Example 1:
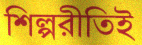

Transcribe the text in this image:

শিল্পরীতিই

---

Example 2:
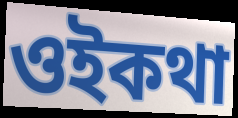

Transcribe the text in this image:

ওইকথা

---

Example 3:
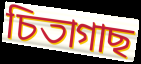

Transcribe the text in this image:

চিতাগাছ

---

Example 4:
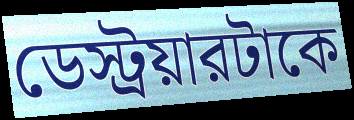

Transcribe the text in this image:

ডেস্ট্রয়ারটাকে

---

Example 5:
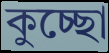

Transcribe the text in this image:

কুচ্ছো